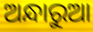
ଅନ୍ଧାରୁଆ